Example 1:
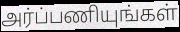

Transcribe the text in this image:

அர்ப்பணியுங்கள்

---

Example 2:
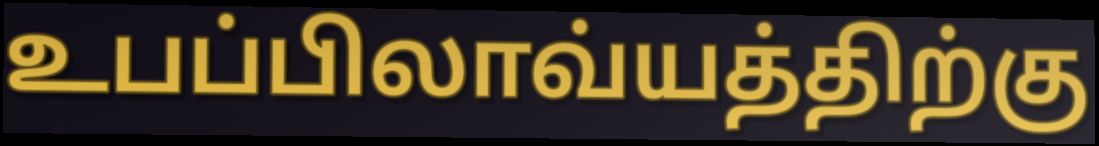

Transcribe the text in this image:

உபப்பிலாவ்யத்திற்கு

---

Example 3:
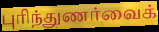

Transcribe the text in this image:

புரிந்துணர்வைக்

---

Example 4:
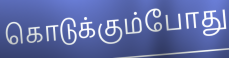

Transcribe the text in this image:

கொடுக்கும்போது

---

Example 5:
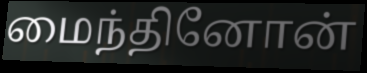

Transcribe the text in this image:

மைந்தினோன்